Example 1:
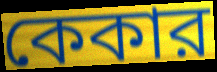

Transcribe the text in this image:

কেকার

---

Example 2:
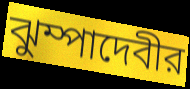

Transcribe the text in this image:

ঝুম্পাদেবীর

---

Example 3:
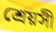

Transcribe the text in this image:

শ্রেয়সী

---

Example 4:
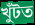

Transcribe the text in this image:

খুঁটত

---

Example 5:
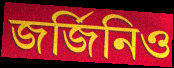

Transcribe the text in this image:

জর্জিনিও